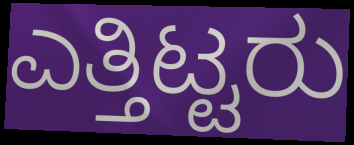
ಎತ್ತಿಟ್ಟರು